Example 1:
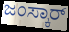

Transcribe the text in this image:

ಜಂಸ್ಕಾರ್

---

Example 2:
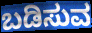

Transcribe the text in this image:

ಬಡಿಸುವ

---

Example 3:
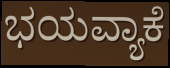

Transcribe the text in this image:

ಭಯವ್ಯಾಕೆ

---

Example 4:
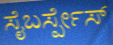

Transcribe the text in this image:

ಸೈಬರ್ಸ್ಪೇಸ್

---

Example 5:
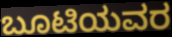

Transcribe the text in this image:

ಬೂಟಿಯವರ